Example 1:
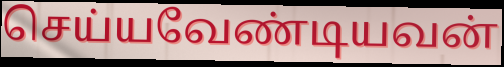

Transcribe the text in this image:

செய்யவேண்டியவன்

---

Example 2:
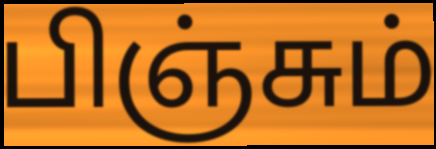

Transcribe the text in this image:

பிஞ்சும்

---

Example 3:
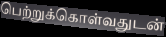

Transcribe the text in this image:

பெற்றுக்கொள்வதுடன்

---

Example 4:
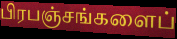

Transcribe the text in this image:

பிரபஞ்சங்களைப்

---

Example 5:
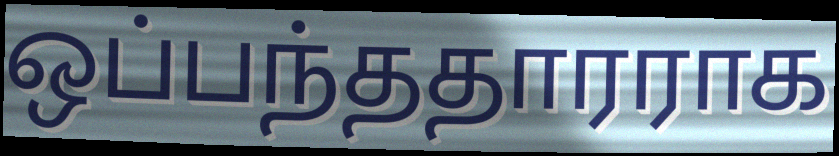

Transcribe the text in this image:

ஒப்பந்ததாரராக